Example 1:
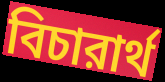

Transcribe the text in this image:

বিচারার্থ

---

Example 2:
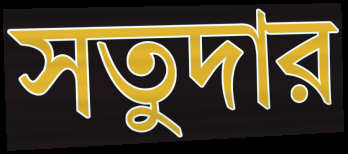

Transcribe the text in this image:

সতুদার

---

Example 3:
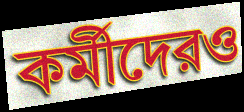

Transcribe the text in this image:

কর্মীদেরও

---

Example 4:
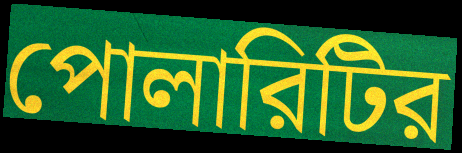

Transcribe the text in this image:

পোলারিটির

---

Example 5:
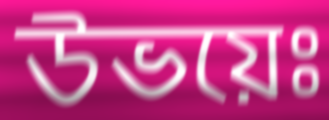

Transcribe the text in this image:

উভয়েঃ